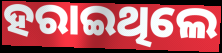
ହରାଇଥିଲେ